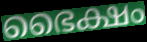
ഭൈക്ഷം